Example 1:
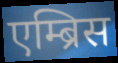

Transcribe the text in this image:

एम्ब्रिस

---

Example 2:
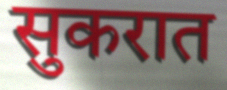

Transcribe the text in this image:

सुकरात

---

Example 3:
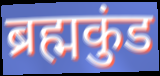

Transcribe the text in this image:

ब्रह्मकुंड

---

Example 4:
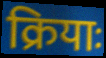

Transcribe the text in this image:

क्रियाः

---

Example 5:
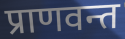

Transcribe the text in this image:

प्राणवन्त